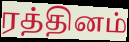
ரத்தினம்